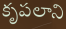
కృపలాని